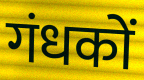
गंधकों